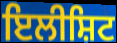
ਇਲੀਸ਼ਿਟ